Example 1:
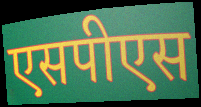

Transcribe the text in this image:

एसपीएस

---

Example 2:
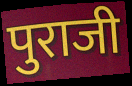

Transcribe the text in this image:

पुराजी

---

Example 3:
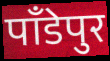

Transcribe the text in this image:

पाँडेपुर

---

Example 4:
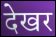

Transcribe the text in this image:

देखर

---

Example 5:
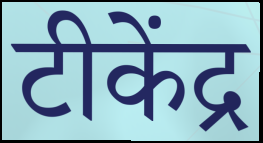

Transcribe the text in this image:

टीकेंद्र